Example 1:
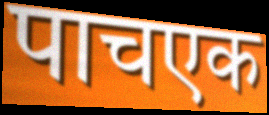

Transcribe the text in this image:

पाचएक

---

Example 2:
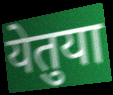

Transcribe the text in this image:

येतुया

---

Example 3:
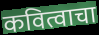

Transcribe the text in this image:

कवित्वाचा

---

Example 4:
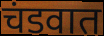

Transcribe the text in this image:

चंडवात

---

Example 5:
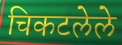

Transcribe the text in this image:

चिकटलेले